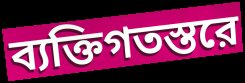
ব্যক্তিগতস্তরে